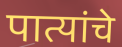
पात्यांचे